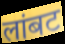
लांबट